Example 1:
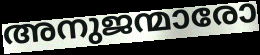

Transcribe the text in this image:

അനുജന്മാരോ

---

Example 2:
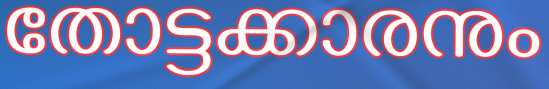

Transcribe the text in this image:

തോട്ടക്കാരനും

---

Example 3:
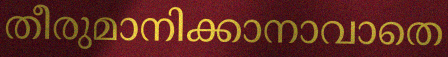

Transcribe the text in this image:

തീരുമാനിക്കാനാവാതെ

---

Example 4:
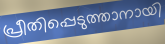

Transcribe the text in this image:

പ്രീതിപ്പെടുത്താനായി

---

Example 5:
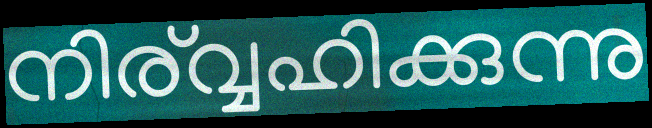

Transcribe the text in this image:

നിര്വ്വഹിക്കുന്നു